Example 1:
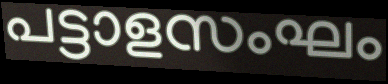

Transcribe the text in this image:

പട്ടാളസംഘം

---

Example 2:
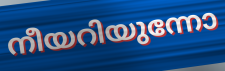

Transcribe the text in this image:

നീയറിയുന്നോ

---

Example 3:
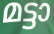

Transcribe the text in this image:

മട്ടാ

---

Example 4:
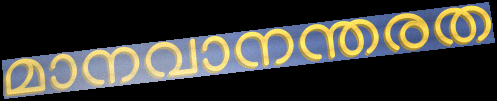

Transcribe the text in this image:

മാനവാനന്തരത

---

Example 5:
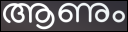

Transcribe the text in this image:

ആണും